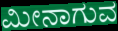
ಮೀನಾಗುವ